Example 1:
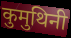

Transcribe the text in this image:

कुमुथिनी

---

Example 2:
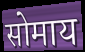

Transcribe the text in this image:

सोमाय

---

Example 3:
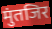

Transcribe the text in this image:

मुंतजिर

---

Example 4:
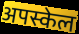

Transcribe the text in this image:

अपस्केल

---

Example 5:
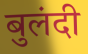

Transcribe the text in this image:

बुलंदी